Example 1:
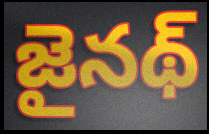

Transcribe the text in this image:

జైనథ్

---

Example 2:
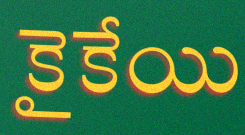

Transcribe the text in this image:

కైకేయి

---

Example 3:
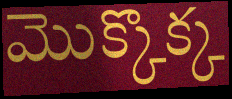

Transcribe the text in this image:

మొక్కొక్క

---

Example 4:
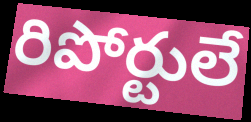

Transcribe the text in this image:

రిపోర్టులే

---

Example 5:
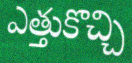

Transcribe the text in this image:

ఎత్తుకొచ్చి